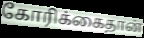
கோரிக்கைதான்